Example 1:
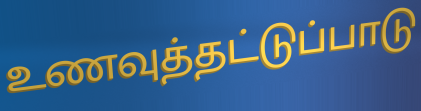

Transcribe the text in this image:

உணவுத்தட்டுப்பாடு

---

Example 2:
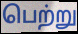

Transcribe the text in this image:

பெற்று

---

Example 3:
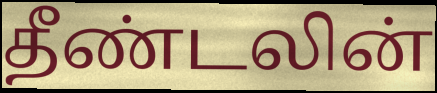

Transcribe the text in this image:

தீண்டலின்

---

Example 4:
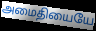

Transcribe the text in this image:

அமைதியையே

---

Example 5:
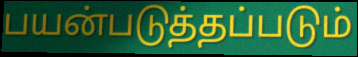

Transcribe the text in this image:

பயன்படுத்தப்படும்